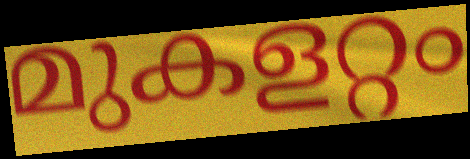
മുകളറ്റം